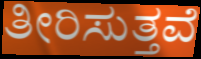
ತೀರಿಸುತ್ತವೆ